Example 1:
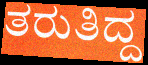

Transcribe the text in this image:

ತರುತಿದ್ದ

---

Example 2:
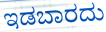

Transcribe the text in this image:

ಇಡಬಾರದು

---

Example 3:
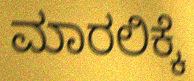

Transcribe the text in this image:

ಮಾರಲಿಕ್ಕೆ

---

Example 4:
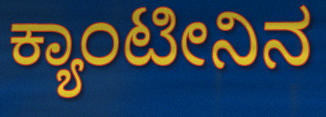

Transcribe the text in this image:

ಕ್ಯಾಂಟೀನಿನ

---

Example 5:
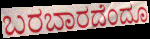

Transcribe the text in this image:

ಬರಬಾರದೆಂದೂ